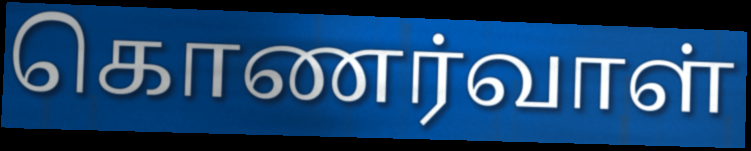
கொணர்வாள்